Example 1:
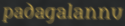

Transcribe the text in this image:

padagalannu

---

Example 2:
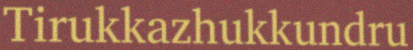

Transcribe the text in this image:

Tirukkazhukkundru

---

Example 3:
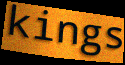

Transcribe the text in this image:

kings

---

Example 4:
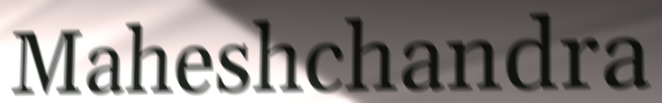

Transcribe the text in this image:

Maheshchandra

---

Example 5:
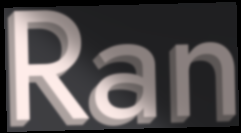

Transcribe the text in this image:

Ran